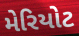
મેરિયોટ